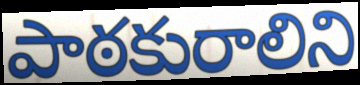
పాఠకురాలిని